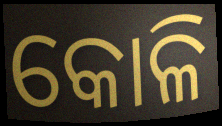
କୋଳି